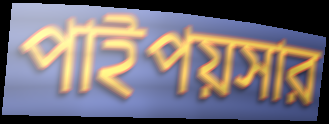
পাইপয়সার